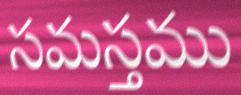
సమస్తము